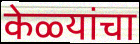
केळ्यांचा